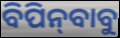
ବିପିନ୍‌ବାବୁ